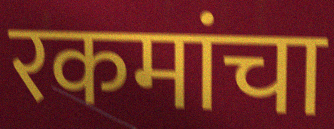
रकमांचा